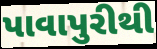
પાવાપુરીથી